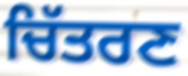
ਚਿੱਤਰਣ